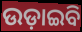
ଉଡ଼ାଇବି